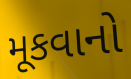
મૂકવાનો